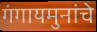
गंगायमुनांचे